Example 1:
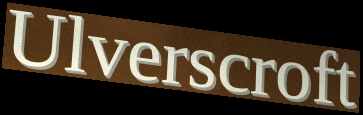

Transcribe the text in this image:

Ulverscroft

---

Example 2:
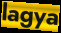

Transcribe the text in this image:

lagya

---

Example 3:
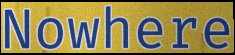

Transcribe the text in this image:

Nowhere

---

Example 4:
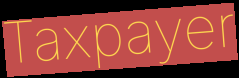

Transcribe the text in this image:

Taxpayer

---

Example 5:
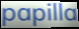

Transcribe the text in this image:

papilla